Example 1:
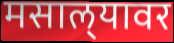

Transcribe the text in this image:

मसाल्यावर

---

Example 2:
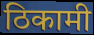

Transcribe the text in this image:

ठिकामी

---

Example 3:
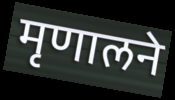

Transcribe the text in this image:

मृणालने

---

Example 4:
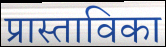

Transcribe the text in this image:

प्रास्ताविका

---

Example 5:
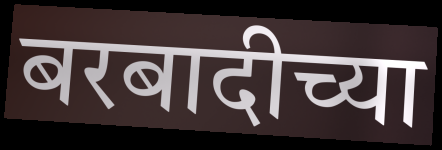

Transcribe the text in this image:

बरबादीच्या